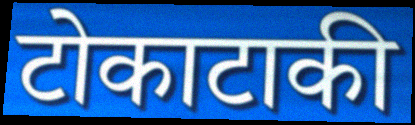
टोकाटाकी